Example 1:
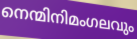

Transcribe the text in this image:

നെന്മിനിമംഗലവും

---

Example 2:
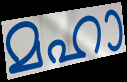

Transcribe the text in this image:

മഹാ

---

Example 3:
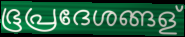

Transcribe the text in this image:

ഭൂപ്രദേശങ്ങള്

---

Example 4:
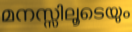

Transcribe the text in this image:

മനസ്സിലൂടെയും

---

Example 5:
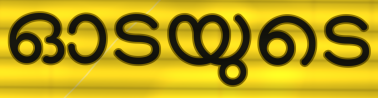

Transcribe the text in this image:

ഓടയുടെ